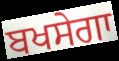
ਬਖਸੇਗਾ